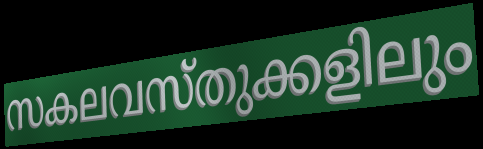
സകലവസ്തുക്കളിലും